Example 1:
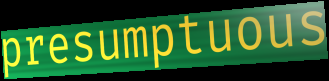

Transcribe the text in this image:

presumptuous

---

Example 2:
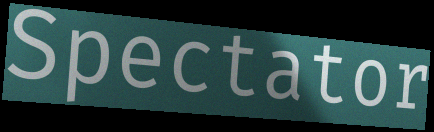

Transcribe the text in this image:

Spectator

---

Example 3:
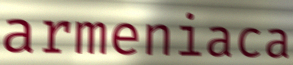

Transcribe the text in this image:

armeniaca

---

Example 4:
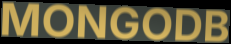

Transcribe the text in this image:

MONGODB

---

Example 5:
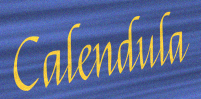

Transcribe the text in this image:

Calendula